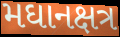
મઘાનક્ષત્ર